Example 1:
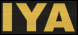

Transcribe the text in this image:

IYA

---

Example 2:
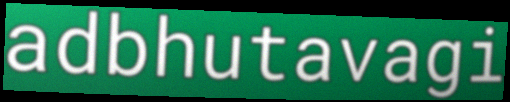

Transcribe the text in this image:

adbhutavagi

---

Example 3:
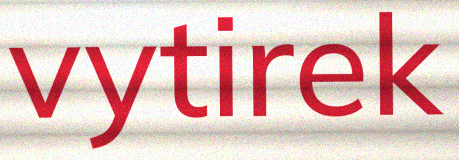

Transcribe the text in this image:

vytirek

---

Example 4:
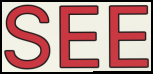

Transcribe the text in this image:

SEE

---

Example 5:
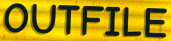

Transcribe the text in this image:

OUTFILE